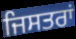
ਜਿਸਤਰਾਂ